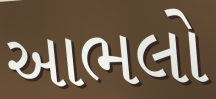
આભલો